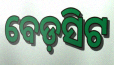
ବେଡ଼ସିଟ